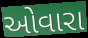
ઓવારા